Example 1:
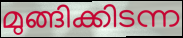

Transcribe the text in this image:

മുങ്ങിക്കിടന്ന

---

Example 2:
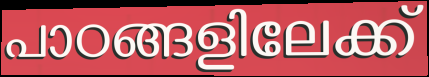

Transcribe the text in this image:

പാഠങ്ങളിലേക്ക്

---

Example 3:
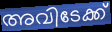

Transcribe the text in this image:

അവിടേക്ക്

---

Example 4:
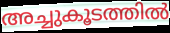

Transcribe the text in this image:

അച്ചുകൂടത്തിൽ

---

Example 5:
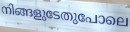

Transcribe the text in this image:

നിങ്ങളുടേതുപോലെ